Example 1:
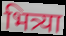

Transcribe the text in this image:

भित्र्या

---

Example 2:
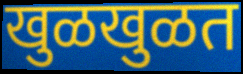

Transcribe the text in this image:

खुळखुळत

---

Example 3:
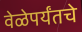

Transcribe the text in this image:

वेळेपर्यंतचे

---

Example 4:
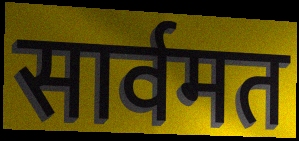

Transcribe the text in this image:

सार्वमत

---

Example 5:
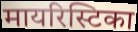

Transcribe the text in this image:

मायरिस्टिका